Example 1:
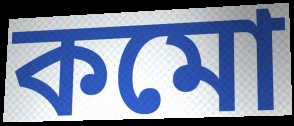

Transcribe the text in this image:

কমো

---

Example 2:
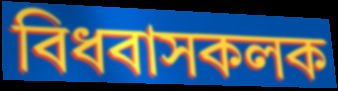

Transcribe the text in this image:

বিধবাসকলক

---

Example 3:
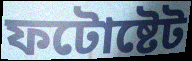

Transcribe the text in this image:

ফটোষ্টেট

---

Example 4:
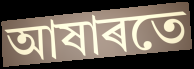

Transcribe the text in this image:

আষাৰতে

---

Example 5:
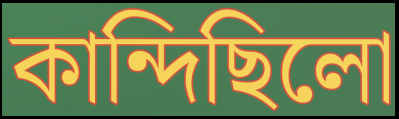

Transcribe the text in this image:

কান্দিছিলো